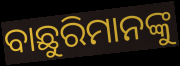
ବାଛୁରିମାନଙ୍କୁ